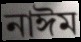
নাঈম